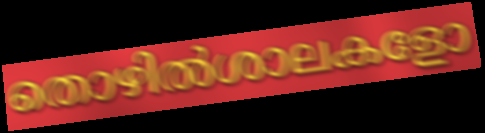
തൊഴിൽശാലകളോ